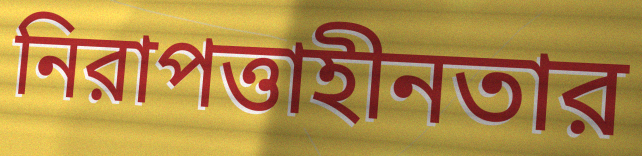
নিরাপত্তাহীনতার